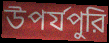
উপর্যপুরি